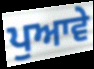
ਪੁਆਵੇ